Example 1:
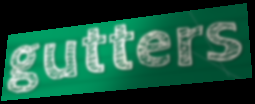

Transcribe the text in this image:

gutters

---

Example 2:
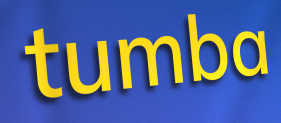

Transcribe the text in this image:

tumba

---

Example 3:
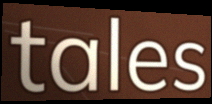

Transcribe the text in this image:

tales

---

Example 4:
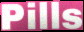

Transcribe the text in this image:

Pills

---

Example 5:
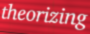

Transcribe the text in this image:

theorizing